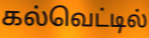
கல்வெட்டில்